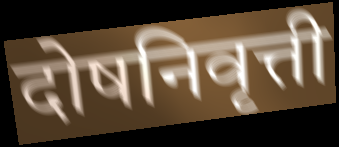
दोषनिवृत्ती